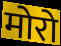
मोरो